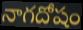
నాగదోషం